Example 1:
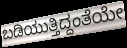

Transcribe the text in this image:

ಬಡಿಯುತ್ತಿದ್ದಂತೆಯೇ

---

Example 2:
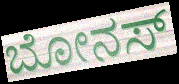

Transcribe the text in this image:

ಬೋನಸ್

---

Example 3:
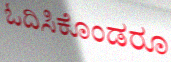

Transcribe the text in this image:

ಓದಿಸಿಕೊಂಡರೂ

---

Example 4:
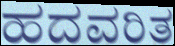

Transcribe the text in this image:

ಹದವರಿತ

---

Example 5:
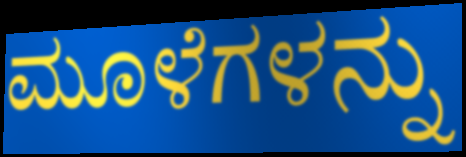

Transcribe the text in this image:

ಮೂಳೆಗಳನ್ನು